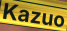
Kazuo